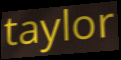
taylor